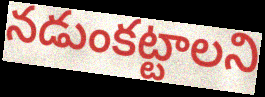
నడుంకట్టాలని